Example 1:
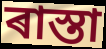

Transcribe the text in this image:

ৰাস্তা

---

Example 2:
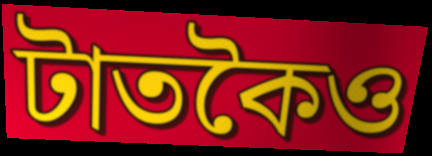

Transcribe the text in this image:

টাতকৈও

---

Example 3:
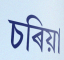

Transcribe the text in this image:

চৰিয়া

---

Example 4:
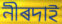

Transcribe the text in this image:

নীৰদাই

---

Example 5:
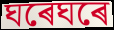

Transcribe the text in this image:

ঘৰেঘৰে